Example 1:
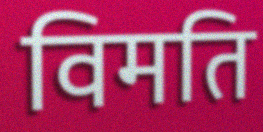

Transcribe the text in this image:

विमति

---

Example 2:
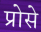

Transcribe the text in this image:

प्रोसे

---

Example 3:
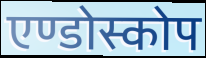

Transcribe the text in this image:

एण्डोस्कोप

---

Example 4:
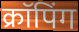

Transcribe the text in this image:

क्रॉपिंग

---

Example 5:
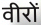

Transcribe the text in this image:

वीरों